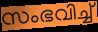
സംഭവിച്ച്